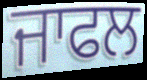
ਜਾਫਲ